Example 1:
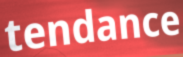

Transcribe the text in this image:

tendance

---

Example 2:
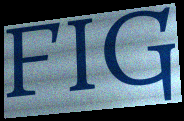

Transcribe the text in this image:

FIG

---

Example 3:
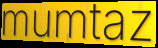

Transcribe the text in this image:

mumtaz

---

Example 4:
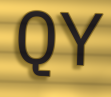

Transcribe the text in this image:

QY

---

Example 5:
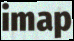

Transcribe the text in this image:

imap